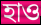
হাও